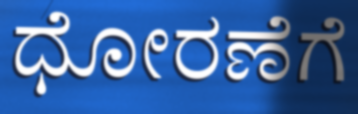
ಧೋರಣೆಗೆ